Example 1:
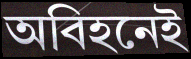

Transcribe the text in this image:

অবিহনেই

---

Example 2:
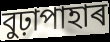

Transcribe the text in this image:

বুঢ়াপাহাৰ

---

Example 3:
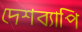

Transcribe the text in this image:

দেশব্যাপি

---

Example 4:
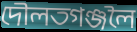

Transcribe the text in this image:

দৌলতগঞ্জলৈ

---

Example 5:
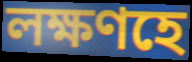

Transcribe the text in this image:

লক্ষণহে